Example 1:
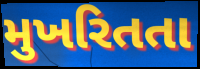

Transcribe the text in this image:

મુખરિતતા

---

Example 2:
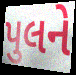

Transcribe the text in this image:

પુલને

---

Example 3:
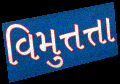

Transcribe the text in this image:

વિમુત્તત્તા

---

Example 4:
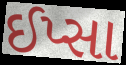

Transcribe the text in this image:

ઈપ્સા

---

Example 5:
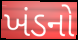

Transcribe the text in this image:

ખંડનો